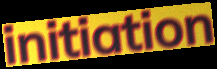
initiation